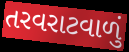
તરવરાટવાળું